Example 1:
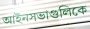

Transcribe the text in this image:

আইনসভাগুলিকে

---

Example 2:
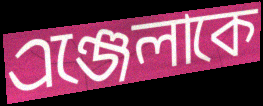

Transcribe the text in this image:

এঞ্জেলাকে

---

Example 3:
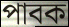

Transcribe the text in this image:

পাবক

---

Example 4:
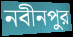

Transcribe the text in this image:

নবীনপুর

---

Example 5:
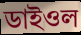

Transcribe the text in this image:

ডাইওল